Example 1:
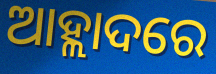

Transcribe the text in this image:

ଆହ୍ଲାଦରେ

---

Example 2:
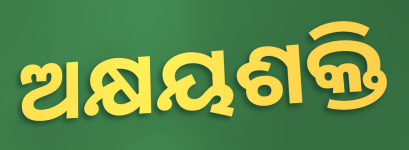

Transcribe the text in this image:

ଅକ୍ଷୟଶକ୍ତି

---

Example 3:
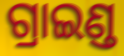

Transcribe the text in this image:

ଗ୍ରାଇଣ୍ଡ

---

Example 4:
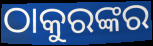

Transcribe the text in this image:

ଠାକୁରଙ୍କର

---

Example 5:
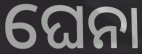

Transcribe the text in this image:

ଘେନା